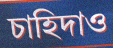
চাহিদাও